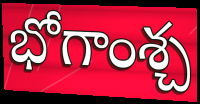
భోగాంశ్చ